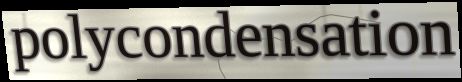
polycondensation